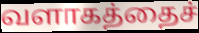
வளாகத்தைச்